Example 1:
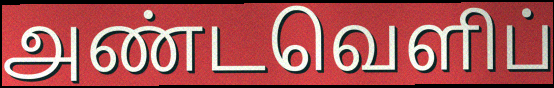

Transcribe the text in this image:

அண்டவெளிப்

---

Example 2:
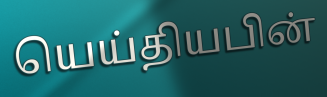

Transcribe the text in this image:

யெய்தியபின்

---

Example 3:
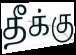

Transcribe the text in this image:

தீக்கு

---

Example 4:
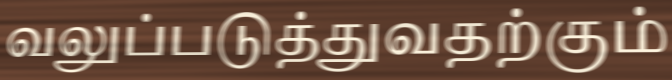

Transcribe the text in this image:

வலுப்படுத்துவதற்கும்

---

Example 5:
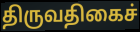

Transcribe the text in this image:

திருவதிகைச்